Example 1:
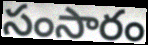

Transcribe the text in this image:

సంసారం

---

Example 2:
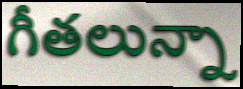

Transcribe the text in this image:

గీతలున్నా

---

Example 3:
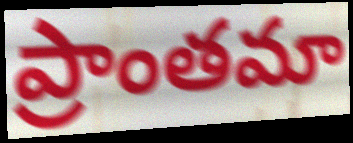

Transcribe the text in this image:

ప్రాంతమా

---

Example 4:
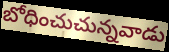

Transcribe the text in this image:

బోధించుచున్నవాడు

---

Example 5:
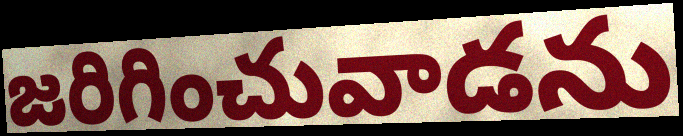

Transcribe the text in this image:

జరిగించువాడను